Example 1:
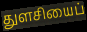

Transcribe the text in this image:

துளசியைப்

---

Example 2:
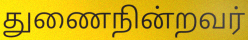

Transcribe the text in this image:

துணைநின்றவர்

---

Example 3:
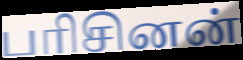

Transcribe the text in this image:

பரிசினன்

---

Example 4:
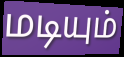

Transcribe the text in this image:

மடியும்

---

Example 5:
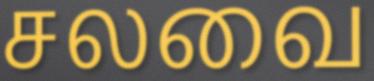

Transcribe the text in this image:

சலவை